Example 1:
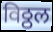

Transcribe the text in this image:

विठ्ठल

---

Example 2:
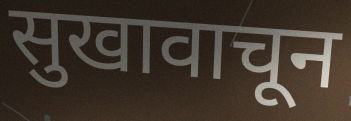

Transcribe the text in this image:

सुखावाचून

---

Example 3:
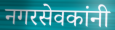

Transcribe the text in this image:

नगरसेवकांनी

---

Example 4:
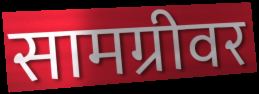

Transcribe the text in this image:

सामग्रीवर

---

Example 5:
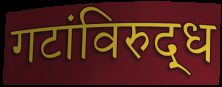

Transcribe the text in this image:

गटांविरुद्ध